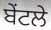
ਬੇਂਟਲੇ